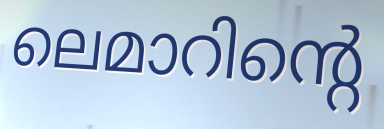
ലെമാറിന്റെ